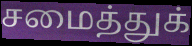
சமைத்துக்